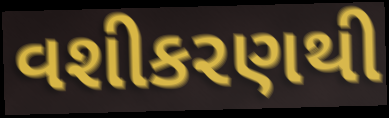
વશીકરણથી